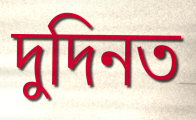
দুদিনত